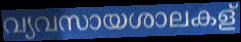
വ്യവസായശാലകള്